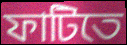
ফাটিতে